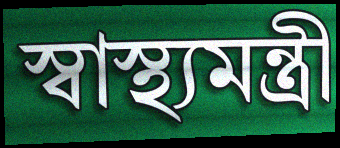
স্বাস্থ্যমন্ত্রী